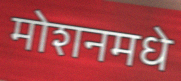
मोशनमधे